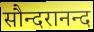
सौन्दरानन्द